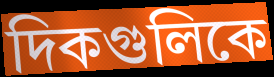
দিকগুলিকে